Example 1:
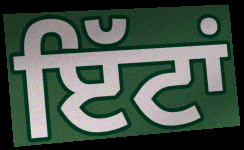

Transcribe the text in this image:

ਇੱਟਾਂ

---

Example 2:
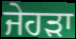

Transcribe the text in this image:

ਜੇਹੜਾ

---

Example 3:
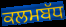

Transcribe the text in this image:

ਕਲਮਬੱਧ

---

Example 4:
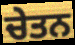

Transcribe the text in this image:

ਚੇਤਨ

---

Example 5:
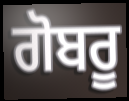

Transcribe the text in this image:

ਗੋਬਰੂ